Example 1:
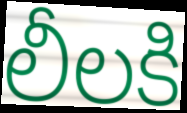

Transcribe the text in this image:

లీలకి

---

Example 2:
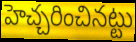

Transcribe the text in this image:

హెచ్చరించినట్టు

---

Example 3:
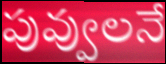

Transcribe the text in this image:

పువ్వులనే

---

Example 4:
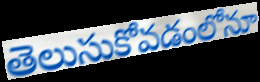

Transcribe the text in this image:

తెలుసుకోవడంలోనూ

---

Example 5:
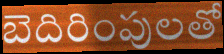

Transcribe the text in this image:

బెదిరింపులతో